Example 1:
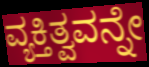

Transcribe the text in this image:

ವ್ಯಕ್ತಿತ್ವವನ್ನೇ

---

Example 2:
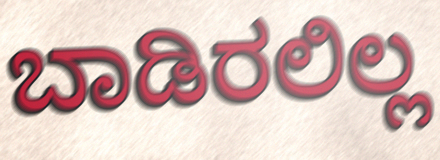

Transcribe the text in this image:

ಬಾಡಿರಲಿಲ್ಲ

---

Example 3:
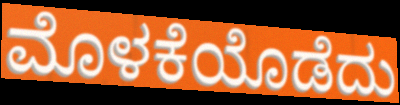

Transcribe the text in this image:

ಮೊಳಕೆಯೊಡೆದು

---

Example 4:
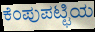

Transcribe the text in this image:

ಕೆಂಪುಪಟ್ಟಿಯ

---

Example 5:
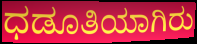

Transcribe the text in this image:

ಧಡೂತಿಯಾಗಿರು